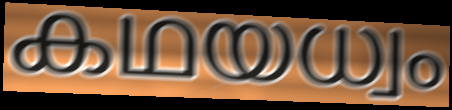
കഥയധ്വം